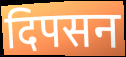
दिपसन